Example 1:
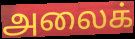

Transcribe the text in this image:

அலைக்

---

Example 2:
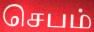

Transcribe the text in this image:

செபம்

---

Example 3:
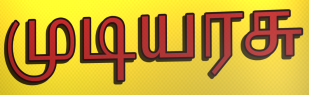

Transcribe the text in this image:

முடியரசு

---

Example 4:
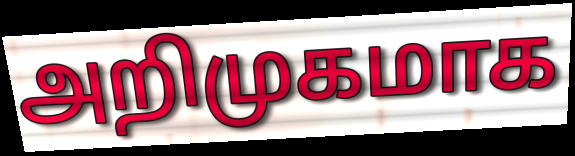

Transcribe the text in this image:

அறிமுகமாக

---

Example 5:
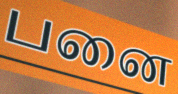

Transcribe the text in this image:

பனை